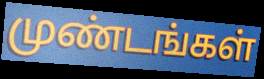
முண்டங்கள்